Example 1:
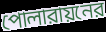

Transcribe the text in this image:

পোলারায়নের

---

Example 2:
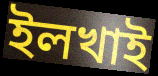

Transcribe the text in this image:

ইলখাই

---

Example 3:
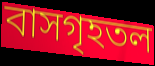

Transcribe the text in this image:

বাসগৃহতল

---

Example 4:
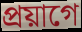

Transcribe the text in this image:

প্রয়াগে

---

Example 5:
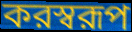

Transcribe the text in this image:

করস্বরূপ